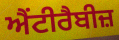
ਐਂਟੀਰੈਬੀਜ਼